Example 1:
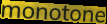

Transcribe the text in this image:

monotone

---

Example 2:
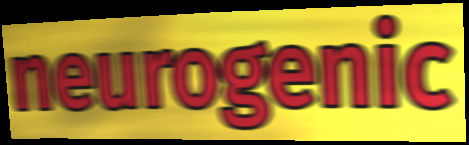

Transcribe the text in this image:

neurogenic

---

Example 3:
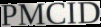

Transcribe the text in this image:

PMCID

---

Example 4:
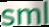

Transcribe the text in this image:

sml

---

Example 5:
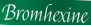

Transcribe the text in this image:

Bromhexine